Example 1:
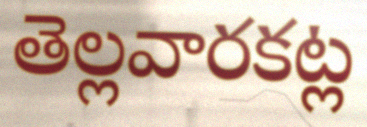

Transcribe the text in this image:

తెల్లవారకట్ల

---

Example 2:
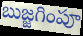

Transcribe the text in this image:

బుజ్జగింపూ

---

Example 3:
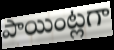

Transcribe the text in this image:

పాయింట్లగా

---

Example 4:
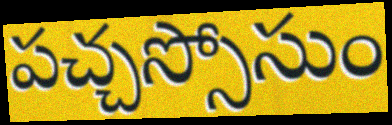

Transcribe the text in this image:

పచ్చస్సోసుం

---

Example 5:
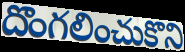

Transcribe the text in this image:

దొంగలించుకొని